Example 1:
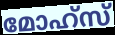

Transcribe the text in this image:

മോഹ്സ്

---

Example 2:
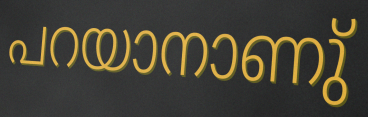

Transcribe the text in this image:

പറയാനാണു്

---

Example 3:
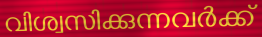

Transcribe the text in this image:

വിശ്വസിക്കുന്നവർക്ക്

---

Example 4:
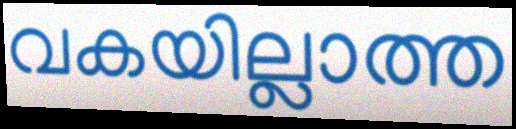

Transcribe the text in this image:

വകയില്ലാത്ത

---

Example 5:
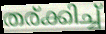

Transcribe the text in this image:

തര്ക്കിച്ച്